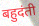
बहुदंती